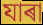
যাৰা